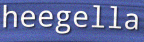
heegella